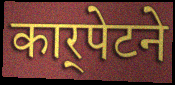
कार्पेटने